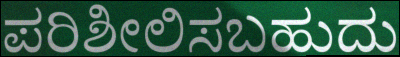
ಪರಿಶೀಲಿಸಬಹುದು